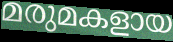
മരുമകളായ